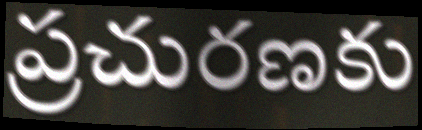
ప్రచురణకు